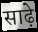
साढ़े